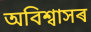
অবিশ্বাসৰ